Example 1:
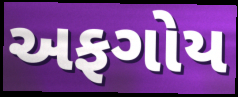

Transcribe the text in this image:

અફગોય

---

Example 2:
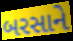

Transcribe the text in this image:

બરસાને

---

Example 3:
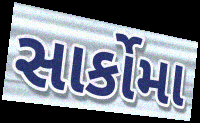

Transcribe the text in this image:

સાર્કોમા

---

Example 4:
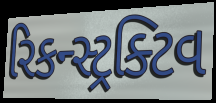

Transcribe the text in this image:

રિકન્સ્ટ્રક્ટિવ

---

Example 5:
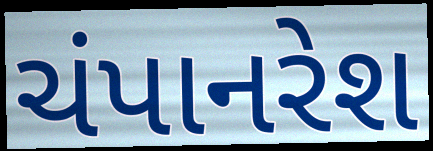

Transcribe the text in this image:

ચંપાનરેશ